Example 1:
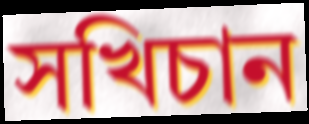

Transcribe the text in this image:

সখিচান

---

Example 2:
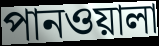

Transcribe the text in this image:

পানওয়ালা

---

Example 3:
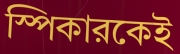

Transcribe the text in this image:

স্পিকারকেই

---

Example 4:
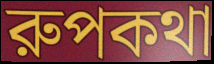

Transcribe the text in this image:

রুপকথা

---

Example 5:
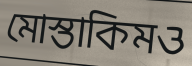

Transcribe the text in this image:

মোস্তাকিমও